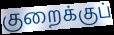
குறைக்குப்